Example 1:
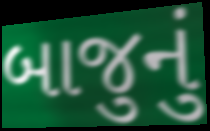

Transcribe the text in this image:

બાજુનું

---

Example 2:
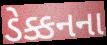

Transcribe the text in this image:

ડેક્કનના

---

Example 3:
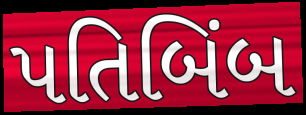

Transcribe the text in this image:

પતિબિંબ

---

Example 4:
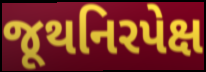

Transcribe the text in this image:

જૂથનિરપેક્ષ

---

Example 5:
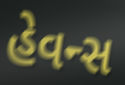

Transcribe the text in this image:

હેવન્સ